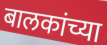
बालकांच्या